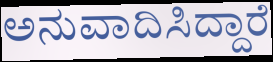
ಅನುವಾದಿಸಿದ್ದಾರೆ